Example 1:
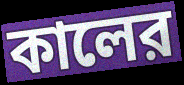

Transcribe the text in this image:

কালের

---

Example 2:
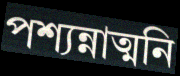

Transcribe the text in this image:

পশ্যন্নাত্মনি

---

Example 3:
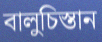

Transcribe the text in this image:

বালুচিস্তান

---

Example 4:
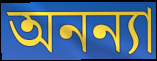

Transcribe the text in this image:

অনন্যা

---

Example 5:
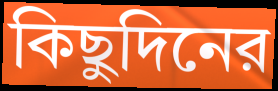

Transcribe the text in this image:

কিছুদিনের